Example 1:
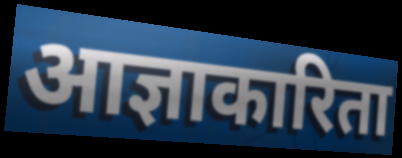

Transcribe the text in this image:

आज्ञाकारिता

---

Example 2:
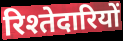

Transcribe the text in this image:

रिश्तेदारियों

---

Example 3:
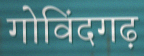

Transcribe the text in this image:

गोविंदगढ़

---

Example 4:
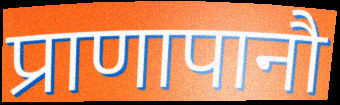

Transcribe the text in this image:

प्राणापानौ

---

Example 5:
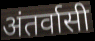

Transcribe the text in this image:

अंतर्वासी